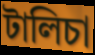
টালিচা